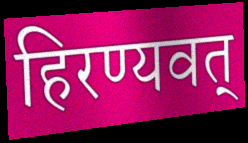
हिरण्यवत्